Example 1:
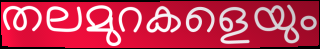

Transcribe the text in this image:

തലമുറകളെയും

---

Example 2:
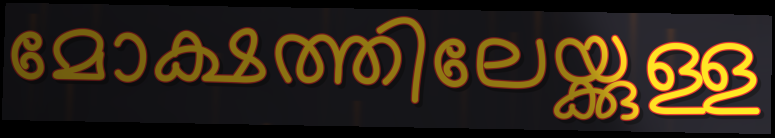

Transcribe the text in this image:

മോക്ഷത്തിലേയ്ക്കുള്ള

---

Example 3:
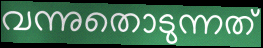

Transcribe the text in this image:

വന്നുതൊടുന്നത്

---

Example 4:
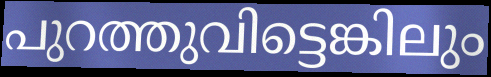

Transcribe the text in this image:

പുറത്തുവിട്ടെങ്കിലും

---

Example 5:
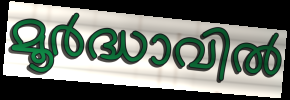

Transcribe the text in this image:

മൂർദ്ധാവിൽ